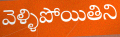
వెళ్ళిపోయితిని